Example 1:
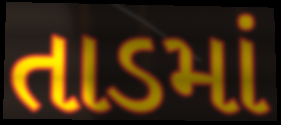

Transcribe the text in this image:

તાડમાં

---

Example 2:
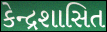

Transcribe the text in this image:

કેન્દ્રશાસિત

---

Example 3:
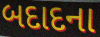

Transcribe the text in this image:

બદાદના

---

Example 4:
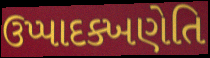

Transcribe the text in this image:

ઉપ્પાદક્ખણેતિ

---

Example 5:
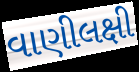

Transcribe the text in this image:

વાણીલક્ષી